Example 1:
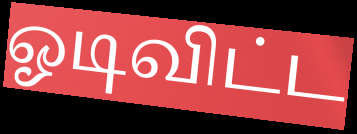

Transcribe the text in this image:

ஓடிவிட்ட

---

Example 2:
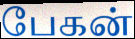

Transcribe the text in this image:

பேகன்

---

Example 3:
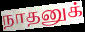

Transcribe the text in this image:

நாதனுக்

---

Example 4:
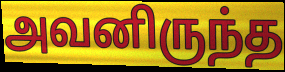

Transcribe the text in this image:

அவனிருந்த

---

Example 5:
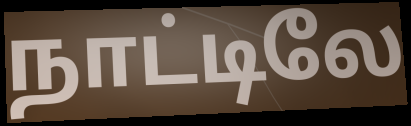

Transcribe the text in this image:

நாட்டிலே